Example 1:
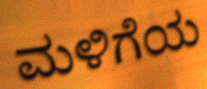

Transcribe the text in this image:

ಮಳಿಗೆಯ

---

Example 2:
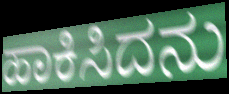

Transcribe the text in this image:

ಹಾಕಿಸಿದನು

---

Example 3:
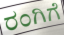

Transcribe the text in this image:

ರಂಗಿಗೆ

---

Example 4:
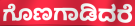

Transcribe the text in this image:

ಗೊಣಗಾಡಿದರೆ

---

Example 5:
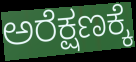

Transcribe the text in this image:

ಅರೆಕ್ಷಣಕ್ಕೆ